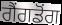
ਗੈਂਗਡੋਂਗ